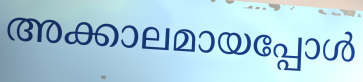
അക്കാലമായപ്പോൾ